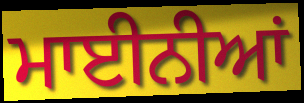
ਮਾਈਨੀਆਂ